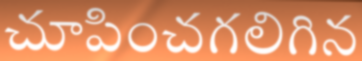
చూపించగలిగిన